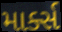
માર્ક્સ